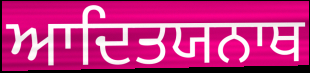
ਆਦਿਤਯਨਾਥ